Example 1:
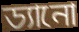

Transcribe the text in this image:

ড্যানো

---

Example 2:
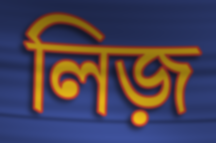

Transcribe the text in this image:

লিজ়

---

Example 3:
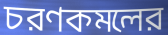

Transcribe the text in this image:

চরণকমলের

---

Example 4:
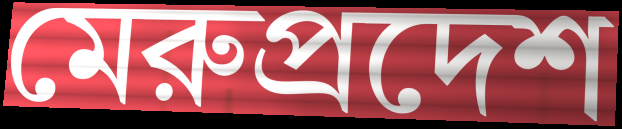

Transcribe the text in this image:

মেরুপ্রদেশ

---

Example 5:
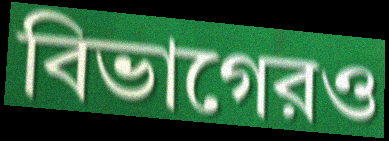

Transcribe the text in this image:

বিভাগেরও